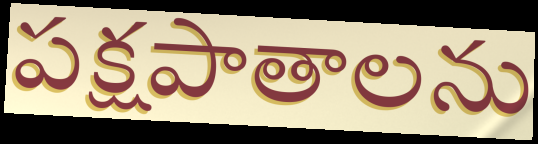
పక్షపాతాలను